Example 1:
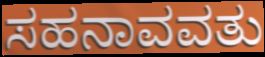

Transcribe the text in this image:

ಸಹನಾವವತು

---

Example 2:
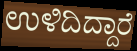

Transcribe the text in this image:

ಉಳಿದಿದ್ದಾರೆ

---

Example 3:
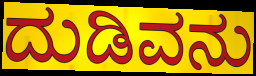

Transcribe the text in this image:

ದುಡಿವನು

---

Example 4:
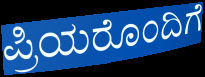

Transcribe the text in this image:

ಪ್ರಿಯರೊಂದಿಗೆ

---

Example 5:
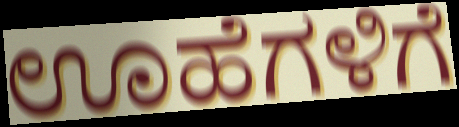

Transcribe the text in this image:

ಊಹೆಗಳಿಗೆ